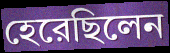
হেরেছিলেন